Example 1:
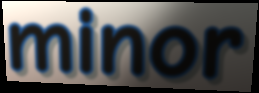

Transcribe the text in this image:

minor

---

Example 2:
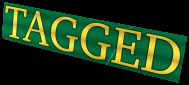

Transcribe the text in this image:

TAGGED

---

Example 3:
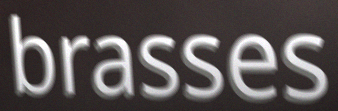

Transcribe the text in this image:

brasses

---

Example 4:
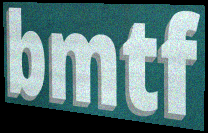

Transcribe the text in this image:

bmtf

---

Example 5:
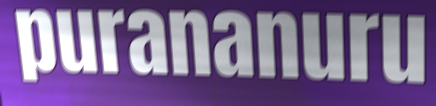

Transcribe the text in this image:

purananuru